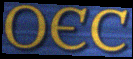
OEC